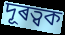
দূৰত্বক